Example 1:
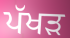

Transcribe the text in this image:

ਪੱਖੜ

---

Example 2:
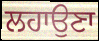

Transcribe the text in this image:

ਲਹਾਉਣਾ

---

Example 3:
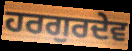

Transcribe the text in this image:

ਹਰਗੁਰਦੇਵ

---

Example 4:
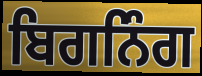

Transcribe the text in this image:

ਬਿਗਨਿੰਗ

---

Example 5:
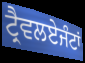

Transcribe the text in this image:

ਟ੍ਰੈਵਲਏਜੰਟਾਂ